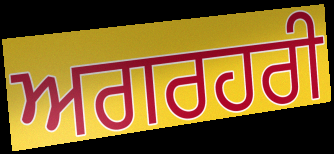
ਅਗਰਹਰੀ